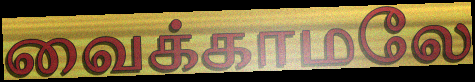
வைக்காமலே